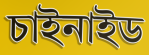
চাইনাইড